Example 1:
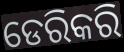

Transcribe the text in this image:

ଡେରିକରି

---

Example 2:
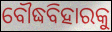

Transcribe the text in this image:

ବୌଦ୍ଧବିହାରକୁ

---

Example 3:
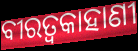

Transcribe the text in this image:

ବୀରତ୍ୱକାହାଣୀ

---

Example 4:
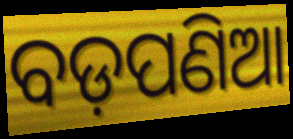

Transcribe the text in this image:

ବଡ଼ପଣିଆ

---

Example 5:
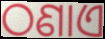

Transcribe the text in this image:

ଠଣାଏ